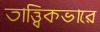
তাত্ত্বিকভাৱে